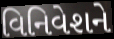
વિનિવેશને